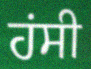
ਹਂਸੀ